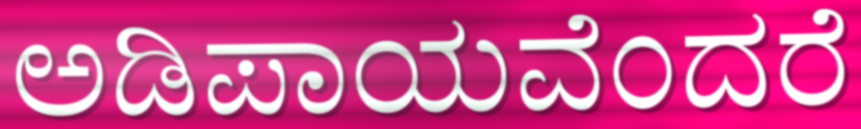
ಅಡಿಪಾಯವೆಂದರೆ